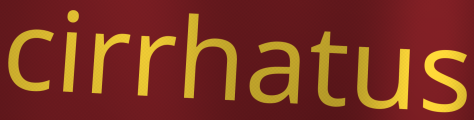
cirrhatus